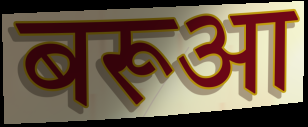
बरूआ